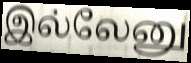
இல்லேனு